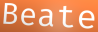
Beate